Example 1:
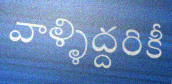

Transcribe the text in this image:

వాళ్ళిద్దరికీ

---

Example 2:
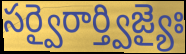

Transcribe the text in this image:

సర్వైరార్త్విజ్యైః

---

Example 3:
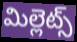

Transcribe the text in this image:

మిల్లెట్స్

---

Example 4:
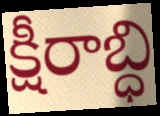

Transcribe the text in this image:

క్షీరాబ్ధి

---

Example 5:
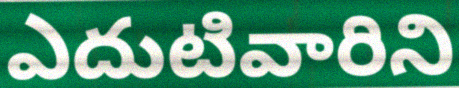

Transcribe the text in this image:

ఎదుటివారిని